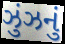
ઝુંઝનું